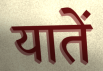
यातें